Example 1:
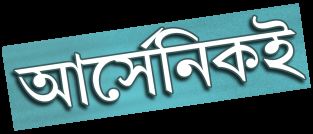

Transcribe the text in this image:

আর্সেনিকই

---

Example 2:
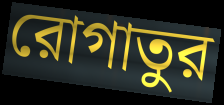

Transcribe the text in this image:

রোগাতুর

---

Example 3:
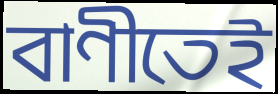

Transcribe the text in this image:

বাণীতেই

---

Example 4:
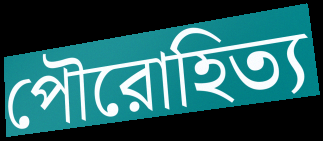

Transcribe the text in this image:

পৌরোহিত্য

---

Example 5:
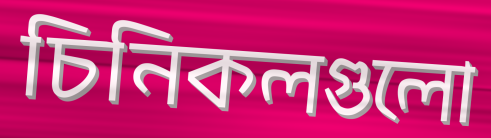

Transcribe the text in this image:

চিনিকলগুলো